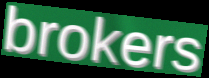
brokers